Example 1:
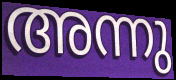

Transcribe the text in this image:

അന്നു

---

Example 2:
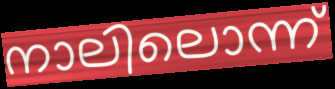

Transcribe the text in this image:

നാലിലൊന്ന്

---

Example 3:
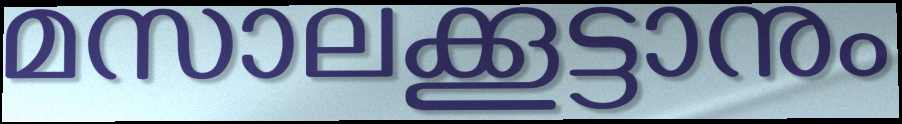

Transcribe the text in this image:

മസാലക്കൂട്ടാനും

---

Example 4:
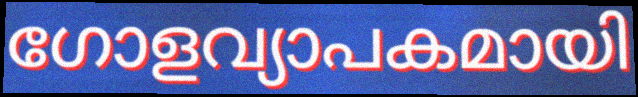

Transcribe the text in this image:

ഗോളവ്യാപകമായി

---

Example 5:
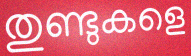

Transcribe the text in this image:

തുണ്ടുകളെ